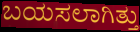
ಬಯಸಲಾಗಿತ್ತು